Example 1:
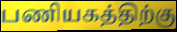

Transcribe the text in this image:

பணியகத்திற்கு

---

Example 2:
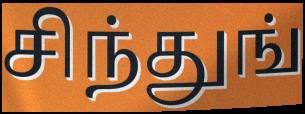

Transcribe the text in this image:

சிந்துங்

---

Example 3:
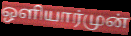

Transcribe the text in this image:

ஒளியார்முன்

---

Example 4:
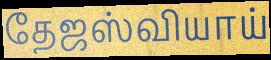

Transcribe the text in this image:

தேஜஸ்வியாய்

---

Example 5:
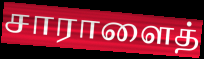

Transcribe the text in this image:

சாராளைத்